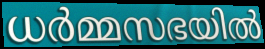
ധർമ്മസഭയിൽ